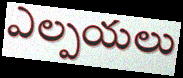
ఎల్పయలు